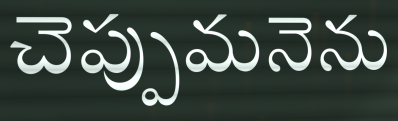
చెప్పుమనెను